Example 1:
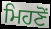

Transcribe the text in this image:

ਮਿਹਣੋਂ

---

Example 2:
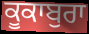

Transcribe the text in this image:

ਕੂਕਾਬੁਰਾ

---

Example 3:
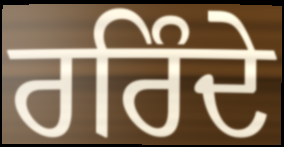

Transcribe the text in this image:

ਰਰਿੰਦੇ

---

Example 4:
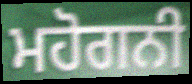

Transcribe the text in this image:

ਮਹੋਗਨੀ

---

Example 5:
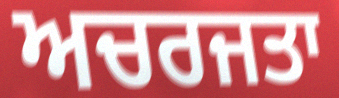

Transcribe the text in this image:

ਅਚਰਜਤਾ